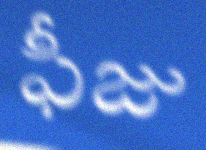
ఫీజు